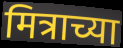
मित्राच्या